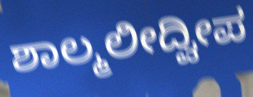
ಶಾಲ್ಮಲೀದ್ವೀಪ